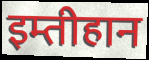
इम्तीहान